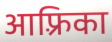
आफ़्रिका